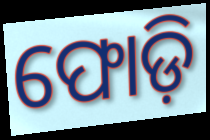
ଫୋଡ଼ି